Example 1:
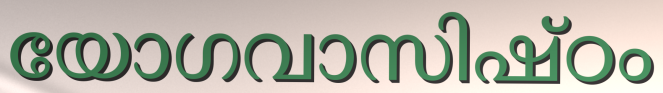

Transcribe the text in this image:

യോഗവാസിഷ്ഠം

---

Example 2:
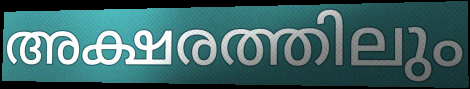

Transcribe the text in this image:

അക്ഷരത്തിലും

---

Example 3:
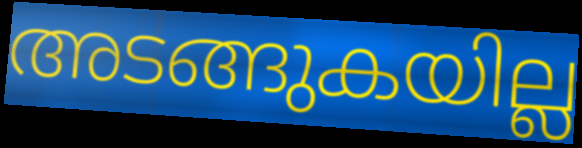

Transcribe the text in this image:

അടങ്ങുകയില്ല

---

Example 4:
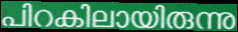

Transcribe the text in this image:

പിറകിലായിരുന്നു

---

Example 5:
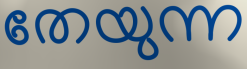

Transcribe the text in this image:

തേയുന്ന